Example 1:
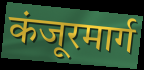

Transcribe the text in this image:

कंजूरमार्ग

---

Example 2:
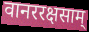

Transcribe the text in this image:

वानररक्षसाम्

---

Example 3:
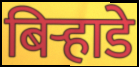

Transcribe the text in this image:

बिऱ्हाडे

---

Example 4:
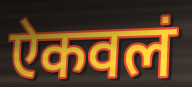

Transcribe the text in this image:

ऐकवलं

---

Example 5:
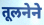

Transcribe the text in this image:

तूलनेने